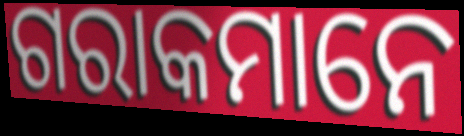
ଗରାକମାନେ